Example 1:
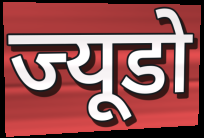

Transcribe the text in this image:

ज्यूडो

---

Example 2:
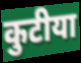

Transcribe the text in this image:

कुटीया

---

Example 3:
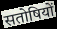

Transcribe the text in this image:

सतोषियों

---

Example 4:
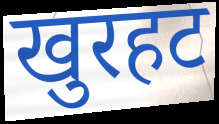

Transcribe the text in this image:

खुरहट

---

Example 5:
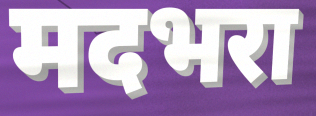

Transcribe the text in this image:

मदभरा